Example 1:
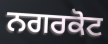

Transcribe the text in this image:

ਨਗਰਕੋਟ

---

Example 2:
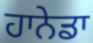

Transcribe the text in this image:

ਹਾਨੇਡਾ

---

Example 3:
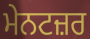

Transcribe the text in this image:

ਮੇਨਟਜ਼ਰ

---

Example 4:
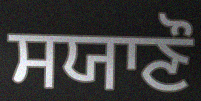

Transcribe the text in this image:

ਸਯਾਣੌ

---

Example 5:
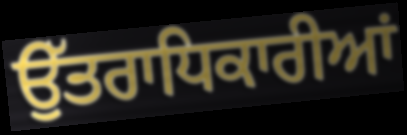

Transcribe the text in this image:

ਉੱਤਰਾਧਿਕਾਰੀਆਂ